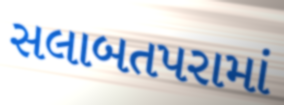
સલાબતપરામાં